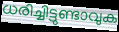
ധരിച്ചിട്ടുണ്ടാവുക